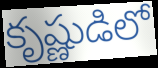
కృష్ణుడిలో